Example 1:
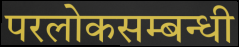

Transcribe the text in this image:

परलोकसम्बन्धी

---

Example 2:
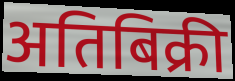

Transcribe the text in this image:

अतिबिक्री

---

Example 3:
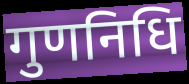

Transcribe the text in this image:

गुणनिधि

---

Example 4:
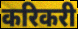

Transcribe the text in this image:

करिकरी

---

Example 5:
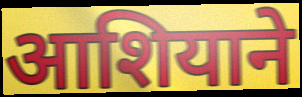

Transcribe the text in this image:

आशियाने